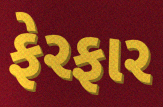
ફેરફાર